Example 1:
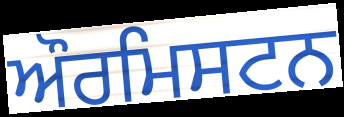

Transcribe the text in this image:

ਔਰਮਿਸਟਨ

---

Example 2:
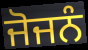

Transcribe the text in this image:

ਜੋਜਨੰ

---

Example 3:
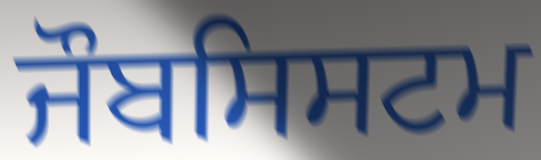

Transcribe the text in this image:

ਜੌਬਸਿਸਟਮ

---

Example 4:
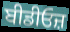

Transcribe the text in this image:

ਬੀਡੀਓਜ਼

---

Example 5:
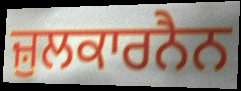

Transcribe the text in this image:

ਜ਼ੁਲਕਾਰਨੈਨ